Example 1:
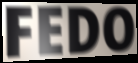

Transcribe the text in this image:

FEDO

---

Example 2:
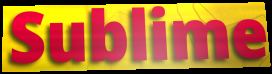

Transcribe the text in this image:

Sublime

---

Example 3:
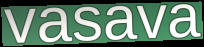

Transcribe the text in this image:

vasava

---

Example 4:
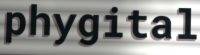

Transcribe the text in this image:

phygital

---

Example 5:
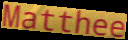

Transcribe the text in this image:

Matthee